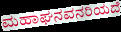
ಮಹಾಘನವನರಿಯದೆ